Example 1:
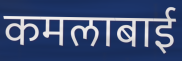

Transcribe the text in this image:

कमलाबाई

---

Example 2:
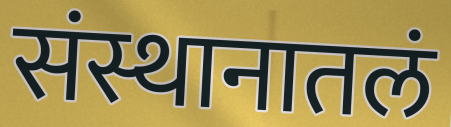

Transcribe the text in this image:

संस्थानातलं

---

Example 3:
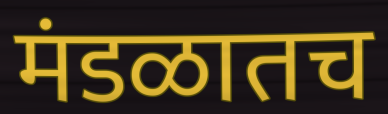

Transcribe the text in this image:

मंडळातच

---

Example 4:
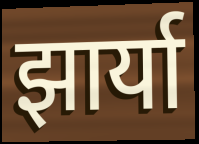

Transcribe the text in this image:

झार्या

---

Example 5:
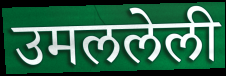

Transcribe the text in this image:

उमललेली